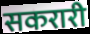
सकरारी